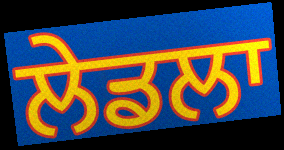
ਲੇਡਲਾ